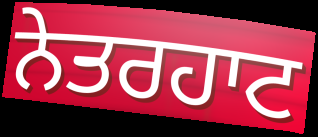
ਨੇਤਰਹਾਟ